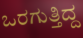
ಒರಗುತ್ತಿದ್ದ